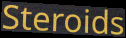
Steroids